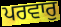
ਪਰਵਾਰੁ